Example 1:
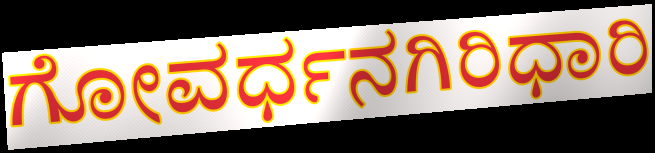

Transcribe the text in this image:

ಗೋವರ್ಧನಗಿರಿಧಾರಿ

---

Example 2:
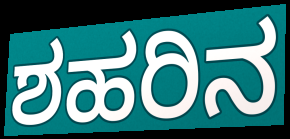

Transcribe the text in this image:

ಶಹರಿನ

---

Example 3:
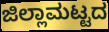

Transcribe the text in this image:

ಜಿಲ್ಲಾಮಟ್ಟದ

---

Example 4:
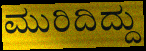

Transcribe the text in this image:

ಮುರಿದಿದ್ದು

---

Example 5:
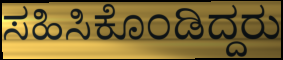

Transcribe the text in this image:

ಸಹಿಸಿಕೊಂಡಿದ್ದರು